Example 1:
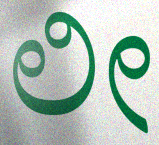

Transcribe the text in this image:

ಲೀ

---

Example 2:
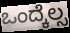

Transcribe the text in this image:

ಒಂದ್ಕೆಲ್ಸ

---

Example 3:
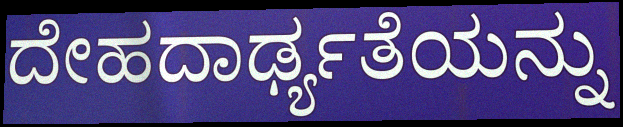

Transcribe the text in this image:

ದೇಹದಾರ್ಢ್ಯತೆಯನ್ನು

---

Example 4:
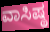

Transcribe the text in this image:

ವಾಸಿಷ್ಠ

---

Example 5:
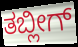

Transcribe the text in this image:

ತಬ್ಲೀಗ್